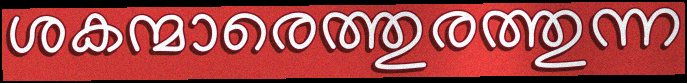
ശകന്മാരെത്തുരത്തുന്ന